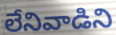
లేనివాడిని